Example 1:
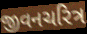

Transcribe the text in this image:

જીવનચરિત્ર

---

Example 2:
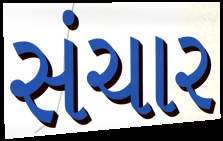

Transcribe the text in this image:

સંચાર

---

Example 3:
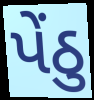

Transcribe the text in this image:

પેંઠુ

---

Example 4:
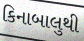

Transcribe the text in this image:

કિનાબાલુથી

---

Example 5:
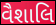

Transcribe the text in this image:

વૈશાલિ